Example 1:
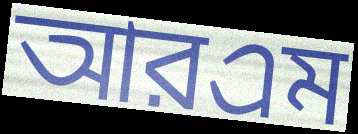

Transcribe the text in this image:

আরএম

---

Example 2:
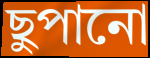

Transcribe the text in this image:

ছুপানো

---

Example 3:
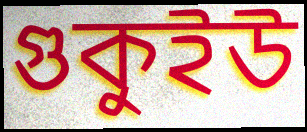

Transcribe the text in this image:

গুকুইউ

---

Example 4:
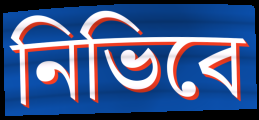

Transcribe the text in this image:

নিভিবে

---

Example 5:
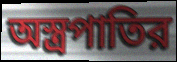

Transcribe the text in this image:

অস্ত্রপাতির